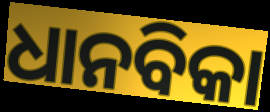
ଧାନବିକା